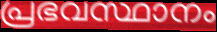
പ്രഭവസ്ഥാനം